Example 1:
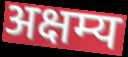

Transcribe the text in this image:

अक्षम्य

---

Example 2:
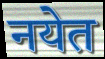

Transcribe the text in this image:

नयेत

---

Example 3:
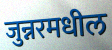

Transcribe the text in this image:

जुन्नरमधील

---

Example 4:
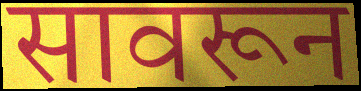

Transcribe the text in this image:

सावरून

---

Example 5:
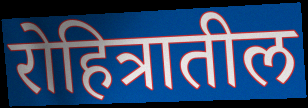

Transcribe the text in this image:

रोहित्रातील